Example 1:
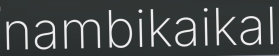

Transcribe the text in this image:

nambikaikal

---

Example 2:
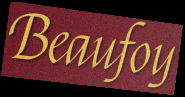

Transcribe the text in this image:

Beaufoy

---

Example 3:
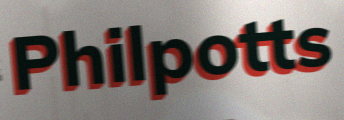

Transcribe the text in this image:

Philpotts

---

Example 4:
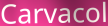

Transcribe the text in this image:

Carvacol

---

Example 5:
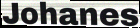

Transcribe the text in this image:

Johanes